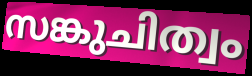
സങ്കുചിത്വം